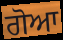
ਗੋਆ